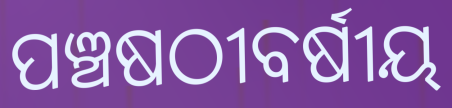
ପଞ୍ଚଷଠୀବର୍ଷୀୟ